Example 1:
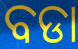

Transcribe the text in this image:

ବଡା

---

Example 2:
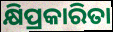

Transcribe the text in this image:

କ୍ଷିପ୍ରକାରିତା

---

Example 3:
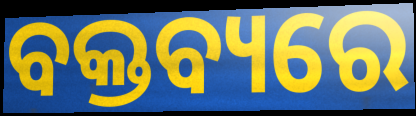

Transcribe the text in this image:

ବକ୍ତବ୍ୟରେ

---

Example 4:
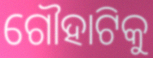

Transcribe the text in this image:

ଗୌହାଟିକୁ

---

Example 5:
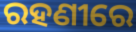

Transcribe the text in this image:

ରହଣୀରେ